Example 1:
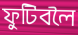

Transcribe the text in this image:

ফুটিবলৈ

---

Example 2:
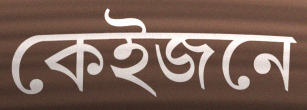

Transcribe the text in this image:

কেইজনে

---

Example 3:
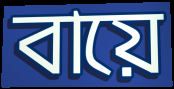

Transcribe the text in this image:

বায়ে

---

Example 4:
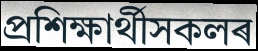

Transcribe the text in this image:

প্ৰশিক্ষাৰ্থীসকলৰ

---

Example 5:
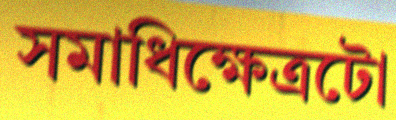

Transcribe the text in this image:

সমাধিক্ষেত্ৰটো